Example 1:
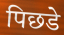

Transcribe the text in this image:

पिछडे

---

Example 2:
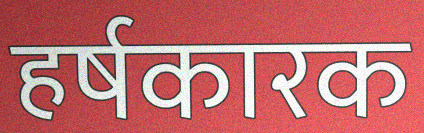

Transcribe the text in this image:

हर्षकारक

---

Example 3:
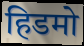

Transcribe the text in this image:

हिडमो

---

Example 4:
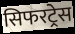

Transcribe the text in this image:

सिफरट्रेस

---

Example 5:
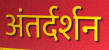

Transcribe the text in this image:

अंतर्दर्शन